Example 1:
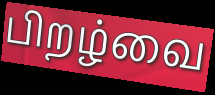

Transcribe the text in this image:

பிறழ்வை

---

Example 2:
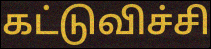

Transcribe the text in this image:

கட்டுவிச்சி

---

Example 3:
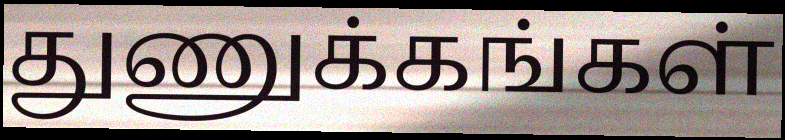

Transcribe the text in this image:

துணுக்கங்கள்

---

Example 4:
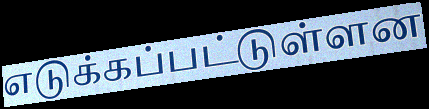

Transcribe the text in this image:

எடுக்கப்பட்டுள்ளன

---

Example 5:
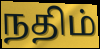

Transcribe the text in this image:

நதிம்